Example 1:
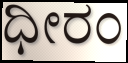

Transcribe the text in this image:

ಧೀರಂ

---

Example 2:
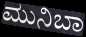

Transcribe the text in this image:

ಮುನಿಬಾ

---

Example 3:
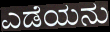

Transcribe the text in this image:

ಎಡೆಯನು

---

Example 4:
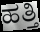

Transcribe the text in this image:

ಹತ್ತಿ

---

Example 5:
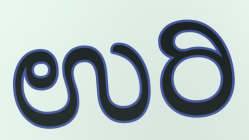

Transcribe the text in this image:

ಉರಿ